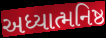
અધ્યાત્મનિષ્ઠ